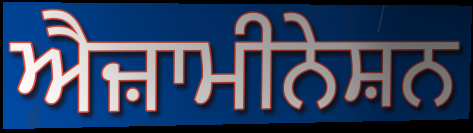
ਐਜ਼ਾਮੀਨੇਸ਼ਨ